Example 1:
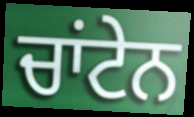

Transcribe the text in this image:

ਚਾਂਟੇਨ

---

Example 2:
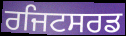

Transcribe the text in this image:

ਰਜਿਟਸਰਡ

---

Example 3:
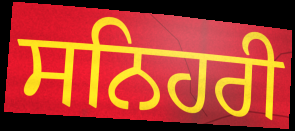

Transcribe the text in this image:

ਸਨਿਹਰੀ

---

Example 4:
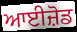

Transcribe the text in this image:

ਆਈਜ਼ੋਡ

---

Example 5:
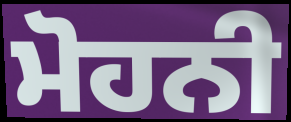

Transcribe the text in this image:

ਮੋਹਨੀ